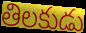
తిలకుడు